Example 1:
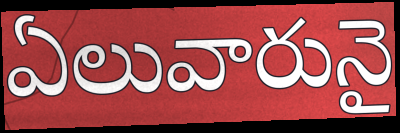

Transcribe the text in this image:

ఏలువారునై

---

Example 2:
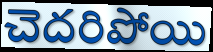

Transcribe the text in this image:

చెదరిపోయి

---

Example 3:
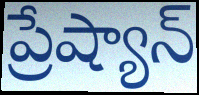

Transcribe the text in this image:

ప్రేష్యాన్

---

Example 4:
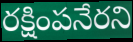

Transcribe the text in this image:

రక్షింపనేరని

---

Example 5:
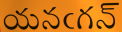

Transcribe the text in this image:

యనఁగన్